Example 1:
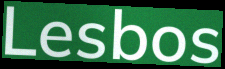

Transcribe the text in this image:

Lesbos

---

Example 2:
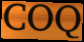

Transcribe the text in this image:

COQ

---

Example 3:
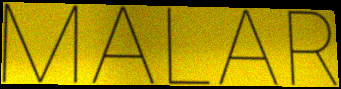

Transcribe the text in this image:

MALAR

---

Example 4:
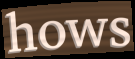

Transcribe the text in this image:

hows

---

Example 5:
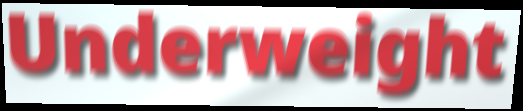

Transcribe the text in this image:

Underweight